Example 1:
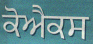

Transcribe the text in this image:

ਕੋਐਕਸ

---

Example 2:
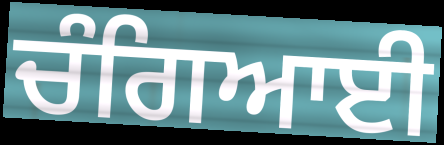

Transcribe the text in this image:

ਚੰਗਿਆਈ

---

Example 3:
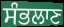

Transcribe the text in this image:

ਸੰਭਲਾਣ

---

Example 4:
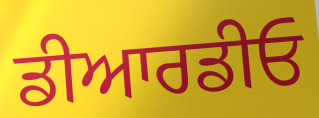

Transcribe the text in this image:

ਡੀਆਰਡੀਓ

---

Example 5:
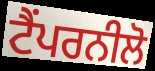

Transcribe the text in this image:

ਟੈਂਪਰਨੀਲੋ